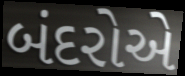
બંદરોએ